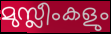
മുസ്ലീംകളും